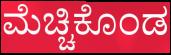
ಮೆಚ್ಚಿಕೊಂಡ